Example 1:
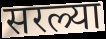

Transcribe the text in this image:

सरल्या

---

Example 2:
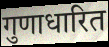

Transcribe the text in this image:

गुणाधारित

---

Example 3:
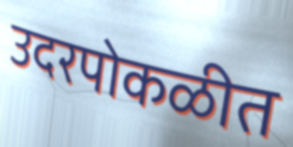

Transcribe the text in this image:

उदरपोकळीत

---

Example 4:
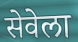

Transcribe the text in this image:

सेवेला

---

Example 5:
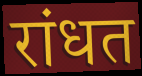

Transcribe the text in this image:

रांधत